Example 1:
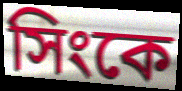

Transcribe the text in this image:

সিংকে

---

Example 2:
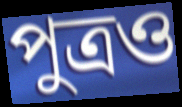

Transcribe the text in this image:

পুত্রও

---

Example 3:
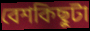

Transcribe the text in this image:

বেশকিছুটা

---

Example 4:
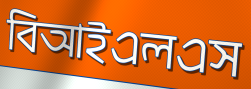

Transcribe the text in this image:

বিআইএলএস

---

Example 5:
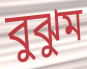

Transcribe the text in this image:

বুঝুম